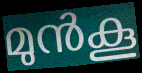
മുൻകൂ